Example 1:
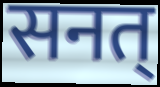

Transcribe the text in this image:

सनत्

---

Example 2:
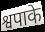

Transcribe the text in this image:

श्वपाके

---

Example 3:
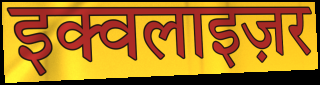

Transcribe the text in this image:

इक्वलाइज़र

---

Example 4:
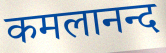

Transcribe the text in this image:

कमलानन्द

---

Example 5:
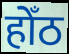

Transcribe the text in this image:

होँठ